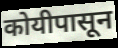
कोयीपासून